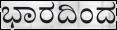
ಭಾರದಿಂದ